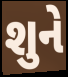
શુને